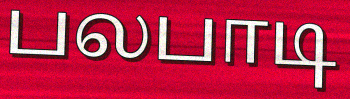
பலபாடி